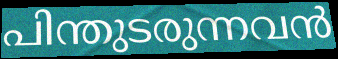
പിന്തുടരുന്നവൻ